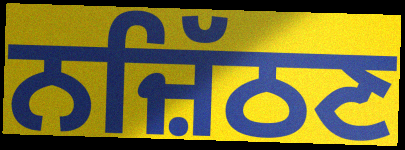
ਨਜ਼ਿੱਠਣ